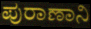
ಪುರಾಣಾನಿ